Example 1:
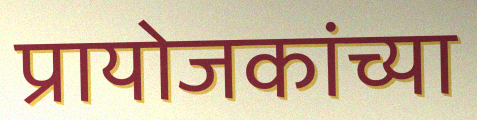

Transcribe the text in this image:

प्रायोजकांच्या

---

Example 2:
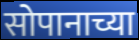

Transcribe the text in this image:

सोपानाच्या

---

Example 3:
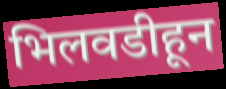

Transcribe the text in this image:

भिलवडीहून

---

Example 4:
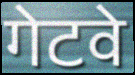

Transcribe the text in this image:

गेटवे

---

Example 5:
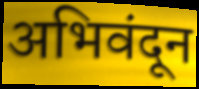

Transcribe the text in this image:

अभिवंदून